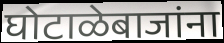
घोटाळेबाजांना